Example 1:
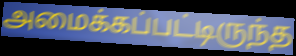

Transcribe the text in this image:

அமைக்கப்பட்டிருந்த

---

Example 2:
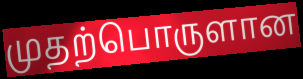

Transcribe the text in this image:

முதற்பொருளான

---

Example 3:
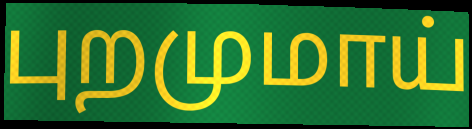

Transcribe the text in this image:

புறமுமாய்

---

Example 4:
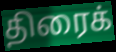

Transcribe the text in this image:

திரைக்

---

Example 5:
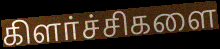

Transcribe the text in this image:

கிளர்ச்சிகளை